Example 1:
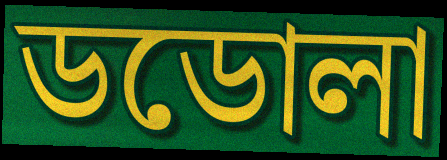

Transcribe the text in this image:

ডডোলা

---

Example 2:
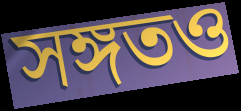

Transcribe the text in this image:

সঙ্গতও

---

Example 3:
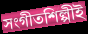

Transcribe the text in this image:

সংগীতশিল্পীই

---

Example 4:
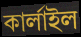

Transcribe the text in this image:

কার্লাইল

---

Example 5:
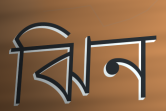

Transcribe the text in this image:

ঝিন